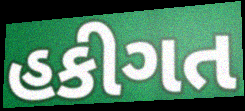
હકીગત